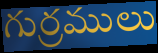
గుర్రములు